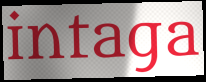
intaga